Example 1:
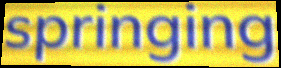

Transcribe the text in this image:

springing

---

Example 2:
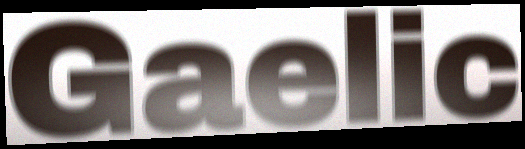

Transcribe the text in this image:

Gaelic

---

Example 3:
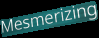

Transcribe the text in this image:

Mesmerizing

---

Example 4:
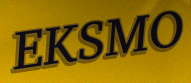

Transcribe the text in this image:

EKSMO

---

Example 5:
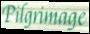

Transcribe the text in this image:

Pilgrimage